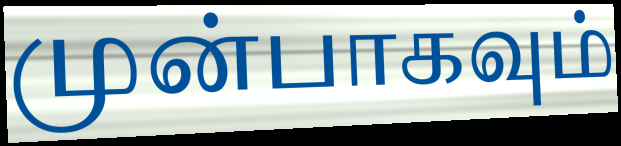
முன்பாகவும்